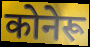
कोनेरू